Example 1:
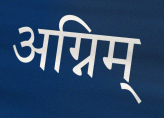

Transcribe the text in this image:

अग्निम्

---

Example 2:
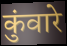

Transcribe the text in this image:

कुंवारे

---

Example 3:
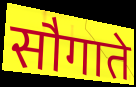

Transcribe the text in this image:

सौगाते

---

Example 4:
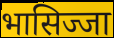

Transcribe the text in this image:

भासिज्जा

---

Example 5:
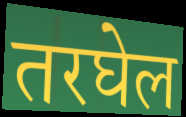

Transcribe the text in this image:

तरघेल